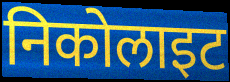
निकोलाइट